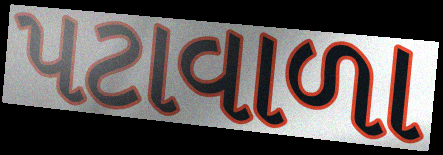
પટાવાળા